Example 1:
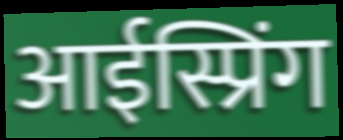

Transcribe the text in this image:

आईस्प्रिंग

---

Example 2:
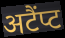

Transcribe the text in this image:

अटैंप्ट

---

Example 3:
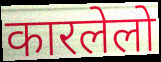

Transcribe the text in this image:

कारलेलो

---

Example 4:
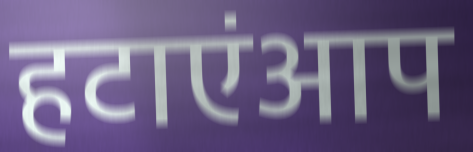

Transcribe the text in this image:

हटाएंआप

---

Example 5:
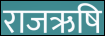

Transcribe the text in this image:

राजऋषि